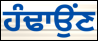
ਹੰਢਾਉਂਣ